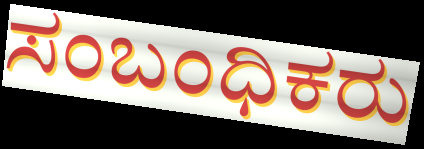
ಸಂಬಂಧಿಕರು